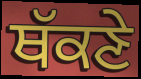
ਥੱਕਣੇ